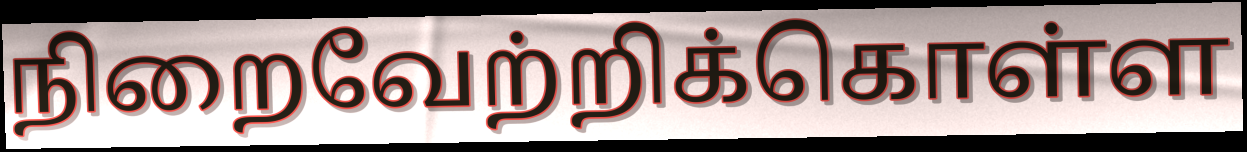
நிறைவேற்றிக்கொள்ள